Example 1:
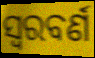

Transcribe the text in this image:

ସ୍ଵରବର୍ଣ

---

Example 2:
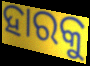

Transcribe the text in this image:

ହାରକୁ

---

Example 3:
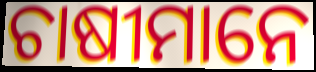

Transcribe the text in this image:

ଚାଷୀମାନେ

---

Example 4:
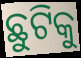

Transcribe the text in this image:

ଛୁଟିକୁ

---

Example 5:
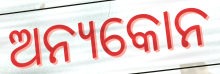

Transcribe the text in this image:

ଅନ୍ୟକୋନ